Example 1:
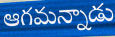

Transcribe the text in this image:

ఆగమన్నాడు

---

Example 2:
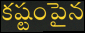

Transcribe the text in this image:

కష్టంపైన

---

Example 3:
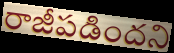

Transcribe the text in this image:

రాజీపడిందని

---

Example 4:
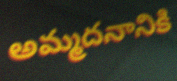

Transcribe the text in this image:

అమ్మదనానికి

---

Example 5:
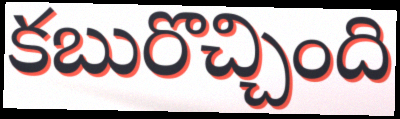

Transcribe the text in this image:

కబురొచ్చింది